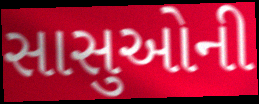
સાસુઓની